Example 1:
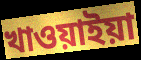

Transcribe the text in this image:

খাওয়াইয়া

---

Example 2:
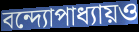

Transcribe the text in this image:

বন্দ্যোপাধ্যায়ও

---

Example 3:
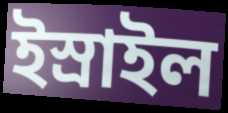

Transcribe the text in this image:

ইস্রাইল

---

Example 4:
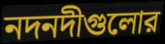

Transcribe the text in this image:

নদনদীগুলোর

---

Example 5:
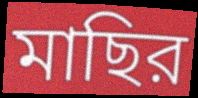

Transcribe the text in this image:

মাছির